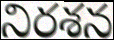
నిరశన